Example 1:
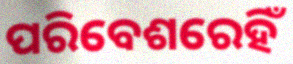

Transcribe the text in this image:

ପରିବେଶରେହିଁ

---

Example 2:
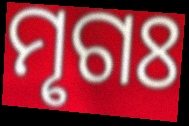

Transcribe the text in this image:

ମୃଗଃ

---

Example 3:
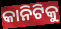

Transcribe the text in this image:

କାନିଟିକୁ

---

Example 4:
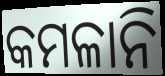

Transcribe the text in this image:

କମଳାନି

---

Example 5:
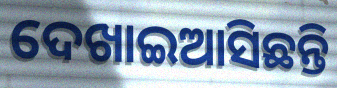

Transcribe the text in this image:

ଦେଖାଇଆସିଛନ୍ତି